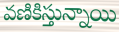
వణికిస్తున్నాయి